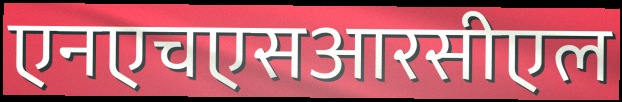
एनएचएसआरसीएल